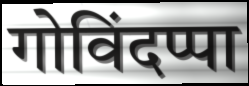
गोविंदप्पा